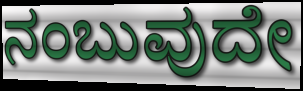
ನಂಬುವುದೇ